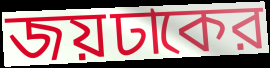
জয়ঢাকের